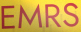
EMRS